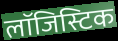
लॉजिस्टिक